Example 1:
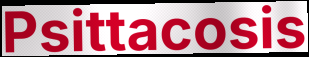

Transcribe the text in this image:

Psittacosis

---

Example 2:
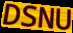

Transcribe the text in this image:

DSNU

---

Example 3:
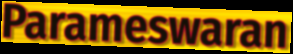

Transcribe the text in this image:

Parameswaran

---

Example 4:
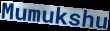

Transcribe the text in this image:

Mumukshu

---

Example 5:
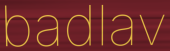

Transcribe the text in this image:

badlav